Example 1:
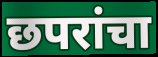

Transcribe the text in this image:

छपरांचा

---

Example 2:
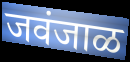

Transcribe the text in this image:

जवंजाळ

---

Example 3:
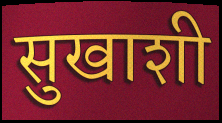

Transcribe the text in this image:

सुखाशी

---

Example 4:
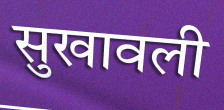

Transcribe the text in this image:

सुखावली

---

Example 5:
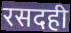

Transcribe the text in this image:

रसदही